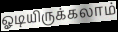
ஓடியிருக்கலாம்